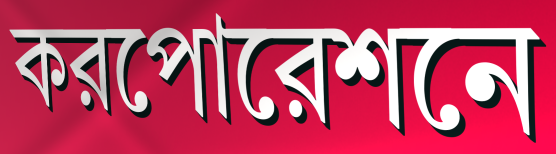
করপোরেশনে